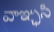
వాఞ్ఛసి